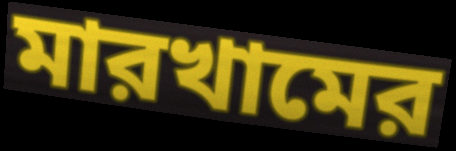
মারখামের